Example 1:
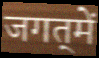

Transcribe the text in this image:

जगत्‌में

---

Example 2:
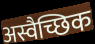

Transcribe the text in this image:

अस्वैच्छिक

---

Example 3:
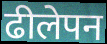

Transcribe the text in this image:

ढीलेपन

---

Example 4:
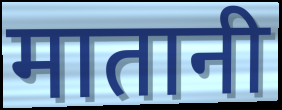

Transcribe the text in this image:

मातानी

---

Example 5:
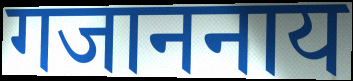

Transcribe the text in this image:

गजाननाय